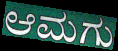
ಆಮಗು